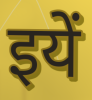
इयें